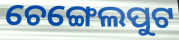
ଚେଙ୍ଗେଲପୁଟ